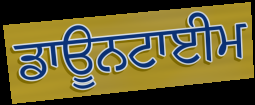
ਡਾਊਨਟਾਈਮ